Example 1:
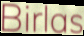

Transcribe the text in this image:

Birlas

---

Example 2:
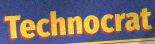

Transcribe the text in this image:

Technocrat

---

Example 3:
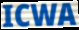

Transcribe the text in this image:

ICWA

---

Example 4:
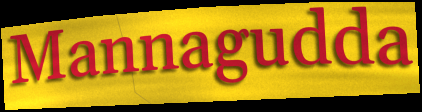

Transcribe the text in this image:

Mannagudda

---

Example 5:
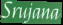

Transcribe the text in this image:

Srujana